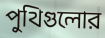
পুথিগুলোর